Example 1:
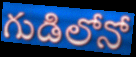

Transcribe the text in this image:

గుడిలోనో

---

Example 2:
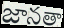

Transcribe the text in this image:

జానతా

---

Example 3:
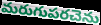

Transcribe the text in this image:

మరుగుపరచెను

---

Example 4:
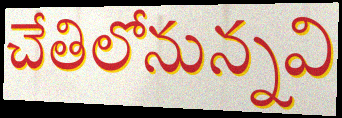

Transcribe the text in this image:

చేతిలోనున్నవి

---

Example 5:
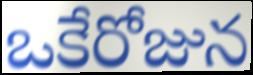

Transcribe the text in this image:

ఒకేరోజున